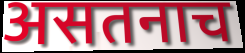
असतनाच